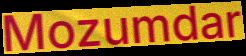
Mozumdar